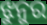
ଝୁନୁର